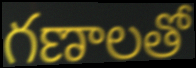
గణాలతో